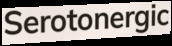
Serotonergic